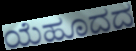
ಯೆಹೂದದ